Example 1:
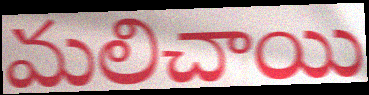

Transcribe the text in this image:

మలిచాయి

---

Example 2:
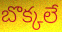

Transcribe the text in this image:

బొక్కలే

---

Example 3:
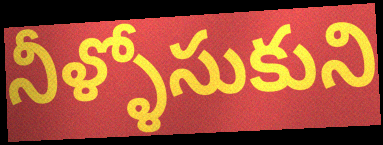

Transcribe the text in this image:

నీళ్ళోసుకుని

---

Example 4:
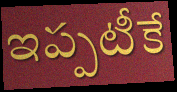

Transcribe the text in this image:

ఇప్పటీకే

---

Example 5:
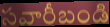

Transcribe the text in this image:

సవారీబండి